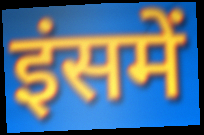
इंसमें